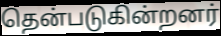
தென்படுகின்றனர்